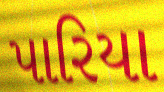
પારિયા